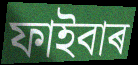
ফাইবাৰ